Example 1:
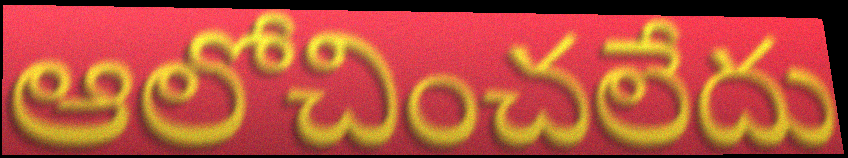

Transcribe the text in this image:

ఆలోచించలేదు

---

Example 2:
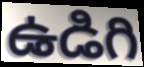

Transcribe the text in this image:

ఉడిగి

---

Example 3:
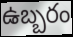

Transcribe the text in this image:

ఉబ్బరం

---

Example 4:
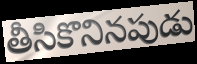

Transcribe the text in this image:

తీసికొనినపుడు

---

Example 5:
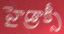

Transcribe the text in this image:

హైడ్రాక్సీ